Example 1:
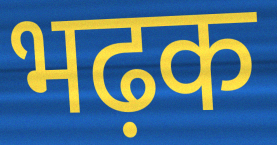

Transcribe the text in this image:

भढ़क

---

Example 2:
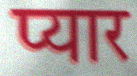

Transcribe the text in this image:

प्‍यार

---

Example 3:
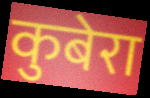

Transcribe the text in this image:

कुबेरा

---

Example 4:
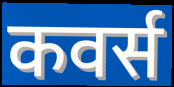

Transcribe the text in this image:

कवर्स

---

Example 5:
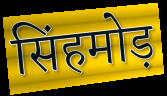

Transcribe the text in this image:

सिंहमोड़